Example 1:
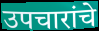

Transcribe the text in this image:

उपचारांचे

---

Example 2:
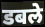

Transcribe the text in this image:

डबले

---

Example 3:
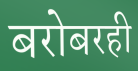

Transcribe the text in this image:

बरोबरही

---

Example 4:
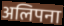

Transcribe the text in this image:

अलिपना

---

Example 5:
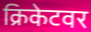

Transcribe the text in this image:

क्रिकेटवर